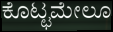
ಕೊಟ್ಟಮೇಲೂ